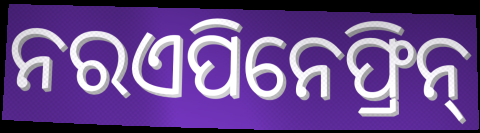
ନରଏପିନେଫ୍ରିନ୍